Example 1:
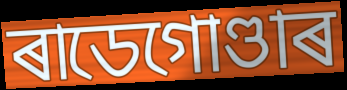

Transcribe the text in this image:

ৰাডেগোণ্ডাৰ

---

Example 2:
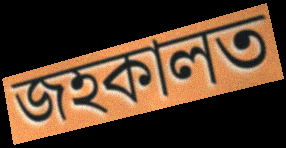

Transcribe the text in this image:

জহকালত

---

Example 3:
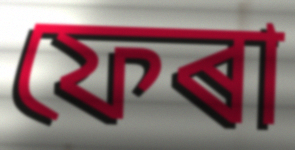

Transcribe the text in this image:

ফেৰা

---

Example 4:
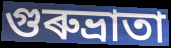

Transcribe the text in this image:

গুৰুভ্ৰাতা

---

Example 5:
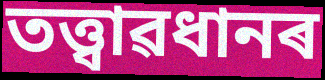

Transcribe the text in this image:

তত্ত্বাৱধানৰ